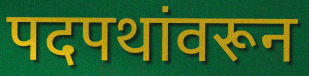
पदपथांवरून